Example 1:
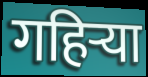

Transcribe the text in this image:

गहिऱ्या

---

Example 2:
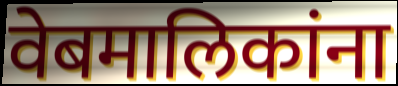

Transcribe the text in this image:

वेबमालिकांना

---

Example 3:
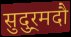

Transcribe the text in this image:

सुदुर्मदौ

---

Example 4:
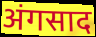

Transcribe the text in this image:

अंगसाद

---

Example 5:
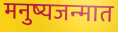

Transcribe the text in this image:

मनुष्यजन्मात